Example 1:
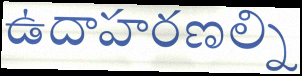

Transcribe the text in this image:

ఉదాహరణల్ని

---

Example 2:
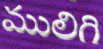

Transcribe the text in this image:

ములిగి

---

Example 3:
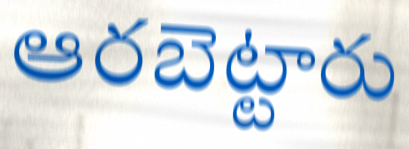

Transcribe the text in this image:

ఆరబెట్టారు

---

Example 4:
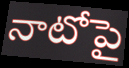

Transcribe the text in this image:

నాటోపై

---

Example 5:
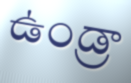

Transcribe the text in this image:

ఉండ్రా